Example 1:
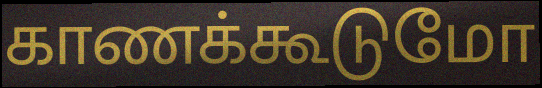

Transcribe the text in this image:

காணக்கூடுமோ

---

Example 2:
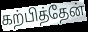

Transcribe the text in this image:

கற்பித்தேன்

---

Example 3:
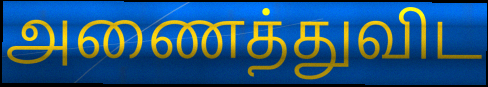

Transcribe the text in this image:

அணைத்துவிட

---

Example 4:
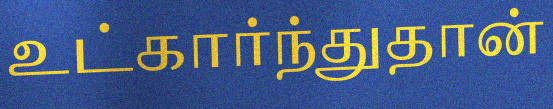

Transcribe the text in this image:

உட்கார்ந்துதான்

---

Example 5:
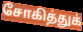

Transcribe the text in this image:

சோகித்துக்